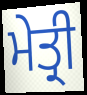
ਮੇਤ੍ਰੀ